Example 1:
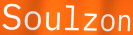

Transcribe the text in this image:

Soulzon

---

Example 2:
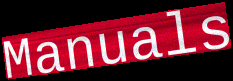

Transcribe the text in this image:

Manuals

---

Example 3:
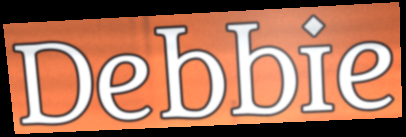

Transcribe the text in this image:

Debbie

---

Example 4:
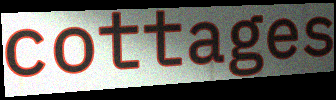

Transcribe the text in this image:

cottages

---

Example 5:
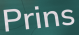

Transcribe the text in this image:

Prins